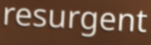
resurgent